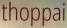
thoppai